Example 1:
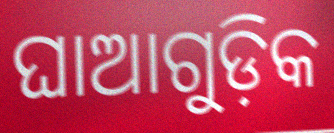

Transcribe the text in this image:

ଘାଆଗୁଡ଼ିକ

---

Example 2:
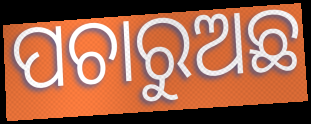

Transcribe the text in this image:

ପଚାରୁଅଛ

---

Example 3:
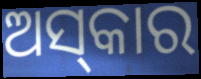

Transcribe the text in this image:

ଅସ୍‌କାର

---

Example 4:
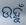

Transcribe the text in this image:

ଉହୁଁ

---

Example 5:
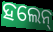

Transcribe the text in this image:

ହଲେନ୍